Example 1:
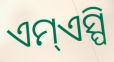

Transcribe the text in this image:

ଏମ୍ଏସ୍ପି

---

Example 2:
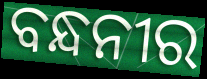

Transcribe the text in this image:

ବନ୍ଧନୀର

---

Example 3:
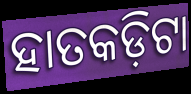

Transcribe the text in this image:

ହାତକଡ଼ିଟା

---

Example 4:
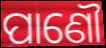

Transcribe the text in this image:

ପାଣୌ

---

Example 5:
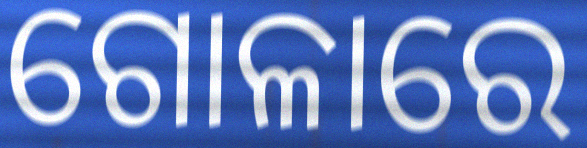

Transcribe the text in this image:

ଗୋଳାରେ